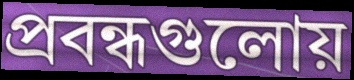
প্রবন্ধগুলোয়